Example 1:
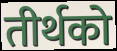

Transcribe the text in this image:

तीर्थको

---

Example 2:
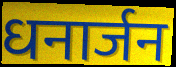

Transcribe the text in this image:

धनार्जन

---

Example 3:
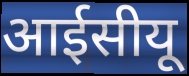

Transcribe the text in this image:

आईसीयू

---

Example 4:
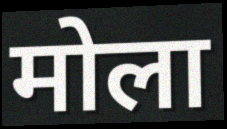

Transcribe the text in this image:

मोला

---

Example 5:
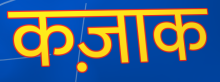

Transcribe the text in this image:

कज़ाक